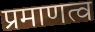
प्रमाणत्व